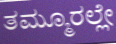
ತಮ್ಮೂರಲ್ಲೇ